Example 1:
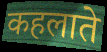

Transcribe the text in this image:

कहलाते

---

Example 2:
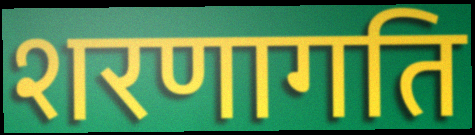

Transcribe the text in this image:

शरणागति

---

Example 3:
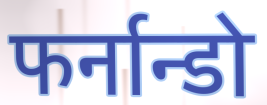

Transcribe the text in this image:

फर्नान्डो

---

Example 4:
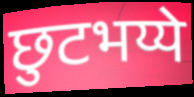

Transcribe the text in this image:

छुटभय्ये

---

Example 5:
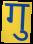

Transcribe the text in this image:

गु